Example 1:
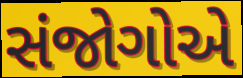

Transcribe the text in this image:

સંજોગોએ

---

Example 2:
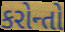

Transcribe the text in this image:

કરોન્તો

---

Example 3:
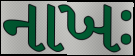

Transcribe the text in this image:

નાખઃ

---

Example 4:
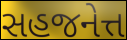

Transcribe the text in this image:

સહજનેત્ત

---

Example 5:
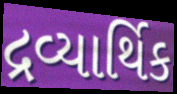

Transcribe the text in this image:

દ્રવ્યાર્થિક